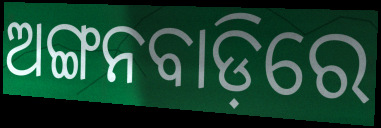
ଅଙ୍ଗନବାଡ଼ିରେ